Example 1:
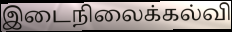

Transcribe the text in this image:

இடைநிலைக்கல்வி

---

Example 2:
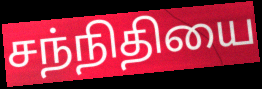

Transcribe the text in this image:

சந்நிதியை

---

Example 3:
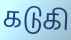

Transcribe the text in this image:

கடுகி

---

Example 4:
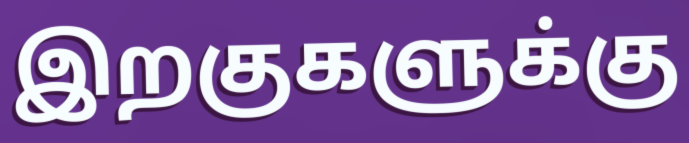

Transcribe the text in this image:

இறகுகளுக்கு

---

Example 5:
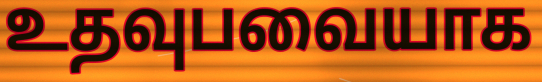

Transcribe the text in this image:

உதவுபவையாக